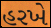
હરખે